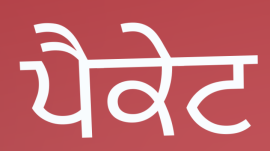
ਪੈਕੇਟ